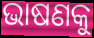
ଭାଷଣକୁ